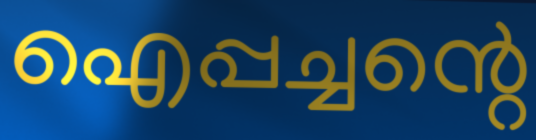
ഐപ്പച്ചന്റെ